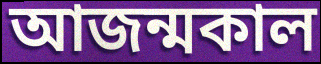
আজন্মকাল